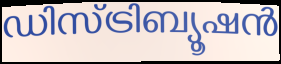
ഡിസ്ട്രിബ്യൂഷൻ